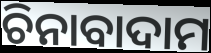
ଚିନାବାଦାମ